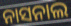
ନାସନାଲ